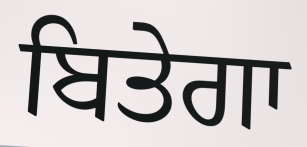
ਬਿਤੇਗਾ